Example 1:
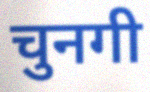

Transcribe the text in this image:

चुनगी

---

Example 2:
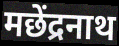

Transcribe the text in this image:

मछेंद्रनाथ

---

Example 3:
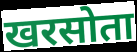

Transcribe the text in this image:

खरसोता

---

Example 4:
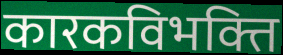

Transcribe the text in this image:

कारकविभक्ति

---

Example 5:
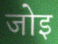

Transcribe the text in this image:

जोइ